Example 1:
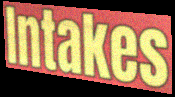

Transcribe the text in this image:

Intakes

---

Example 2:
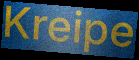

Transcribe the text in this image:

Kreipe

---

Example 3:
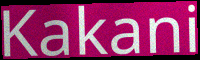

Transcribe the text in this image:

Kakani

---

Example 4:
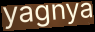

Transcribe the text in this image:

yagnya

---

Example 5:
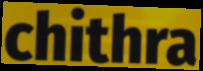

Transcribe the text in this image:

chithra